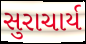
સુરાચાર્ય